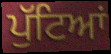
ਪੁੱਟਿਆਂ